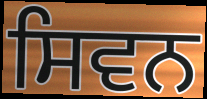
ਸਿਵਨ